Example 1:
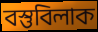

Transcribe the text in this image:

বস্তুবিলাক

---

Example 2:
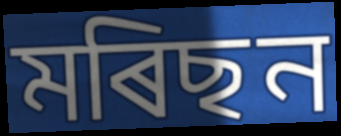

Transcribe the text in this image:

মৰিছন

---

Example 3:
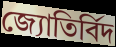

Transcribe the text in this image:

জ্যোতিৰ্বিদ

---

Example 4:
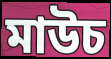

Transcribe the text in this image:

মাউচ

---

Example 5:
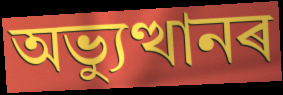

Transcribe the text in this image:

অভ্যুত্থানৰ